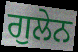
ਗੁਲੇਨ